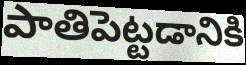
పాతిపెట్టడానికి